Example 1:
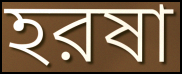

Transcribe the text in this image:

হরষা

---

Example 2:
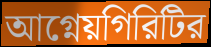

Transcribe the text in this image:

আগ্নেয়গিরিটির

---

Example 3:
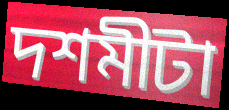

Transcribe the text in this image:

দশমীটা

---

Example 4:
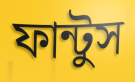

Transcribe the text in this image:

ফান্টুস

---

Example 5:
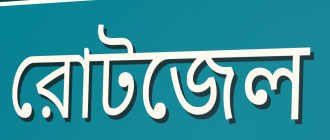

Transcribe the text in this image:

রোটজেল